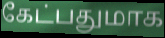
கேட்பதுமாக